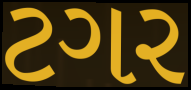
ટગર